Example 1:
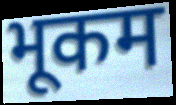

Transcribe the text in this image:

भूकम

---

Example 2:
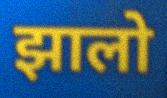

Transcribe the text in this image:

झालो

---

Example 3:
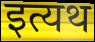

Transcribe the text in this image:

इत्यथ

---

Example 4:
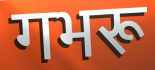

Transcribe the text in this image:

गभरू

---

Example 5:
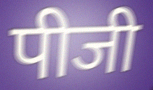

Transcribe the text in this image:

पीजी